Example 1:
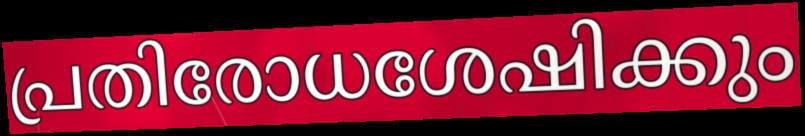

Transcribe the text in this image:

പ്രതിരോധശേഷിക്കും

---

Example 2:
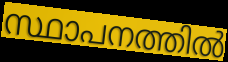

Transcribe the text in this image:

സ്ഥാപനത്തിൽ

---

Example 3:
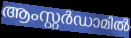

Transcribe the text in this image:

ആംസ്റ്റർഡാമിൽ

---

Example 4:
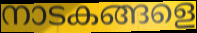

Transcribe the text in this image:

നാടകങ്ങളെ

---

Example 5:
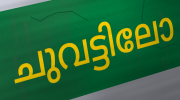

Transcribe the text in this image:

ചുവട്ടിലോ